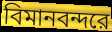
বিমানবন্দরে